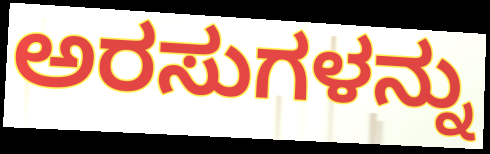
ಅರಸುಗಳನ್ನು